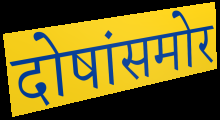
दोषांसमोर